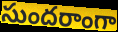
సుందరాంగా